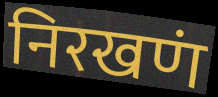
निरखणं